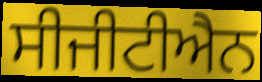
ਸੀਜੀਟੀਐਨ